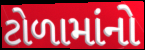
ટોળામાંનો